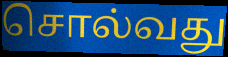
சொல்வது